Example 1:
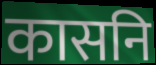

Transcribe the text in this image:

कासनि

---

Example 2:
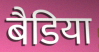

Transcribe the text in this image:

बैडिया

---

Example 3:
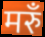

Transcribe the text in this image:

मरुँ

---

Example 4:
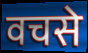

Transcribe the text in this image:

वचसे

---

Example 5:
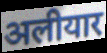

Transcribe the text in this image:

अलीयार